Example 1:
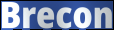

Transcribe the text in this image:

Brecon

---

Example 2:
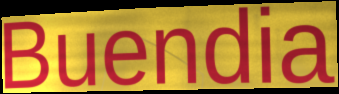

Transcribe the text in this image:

Buendia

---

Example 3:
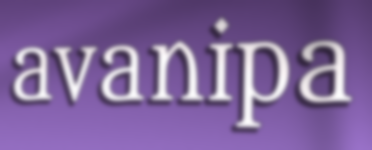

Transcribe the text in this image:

avanipa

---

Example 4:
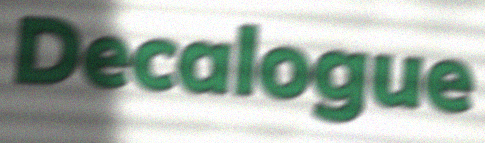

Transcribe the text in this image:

Decalogue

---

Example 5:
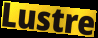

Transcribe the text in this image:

Lustre